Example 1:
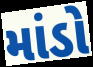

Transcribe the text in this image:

માંડો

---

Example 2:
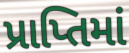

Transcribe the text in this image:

પ્રાપ્તિમાં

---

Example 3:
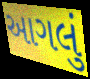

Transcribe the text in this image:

આગલું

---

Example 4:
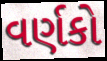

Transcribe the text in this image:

વર્ણકો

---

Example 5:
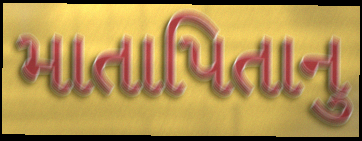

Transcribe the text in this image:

માતાપિતાનુ